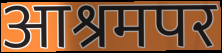
आश्रमपर